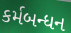
કર્મબન્ધન